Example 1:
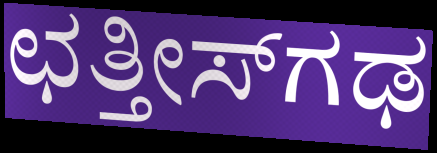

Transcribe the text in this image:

ಛತ್ತೀಸ್‍ಗಢ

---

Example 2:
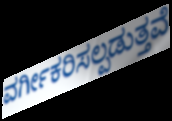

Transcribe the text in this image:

ವರ್ಗೀಕರಿಸಲ್ಪಡುತ್ತವೆ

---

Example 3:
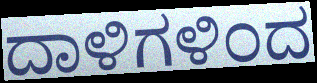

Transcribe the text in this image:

ದಾಳಿಗಳಿಂದ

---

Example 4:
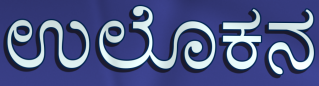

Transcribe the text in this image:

ಉಲೊಕನ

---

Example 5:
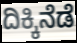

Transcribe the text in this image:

ದಿಕ್ಕಿನೆಡೆ